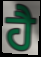
ਹੈ